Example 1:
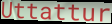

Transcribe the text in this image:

Uttattur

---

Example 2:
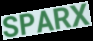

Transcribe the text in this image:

SPARX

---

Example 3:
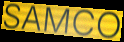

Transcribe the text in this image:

SAMCO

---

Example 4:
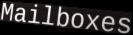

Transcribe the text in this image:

Mailboxes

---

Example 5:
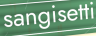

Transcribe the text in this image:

sangisetti